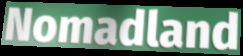
Nomadland